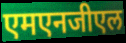
एमएनजीएल